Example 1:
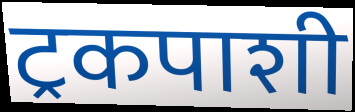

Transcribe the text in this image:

ट्रकपाशी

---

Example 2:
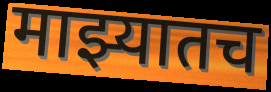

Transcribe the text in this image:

माझ्यातच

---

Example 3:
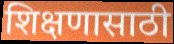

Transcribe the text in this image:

शिक्षणासाठी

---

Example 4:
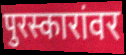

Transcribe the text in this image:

पुरस्कारांवर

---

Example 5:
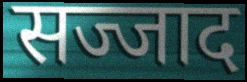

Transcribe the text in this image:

सज्जाद